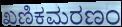
ಖಣಿಕಮರಣಂ